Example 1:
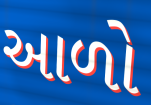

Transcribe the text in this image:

આળો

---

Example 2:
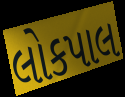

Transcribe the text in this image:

લોકપાલ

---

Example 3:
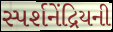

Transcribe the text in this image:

સ્પર્શનેંદ્રિયની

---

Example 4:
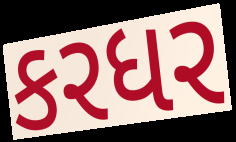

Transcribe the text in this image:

કરધર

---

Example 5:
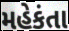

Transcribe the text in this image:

મહેકંતા